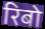
रिबो